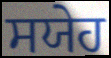
ਸਯੇਹ